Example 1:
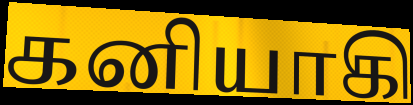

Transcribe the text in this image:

கனியாகி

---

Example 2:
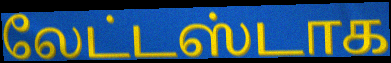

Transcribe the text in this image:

லேட்டஸ்டாக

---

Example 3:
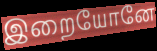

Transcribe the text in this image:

இறையோனே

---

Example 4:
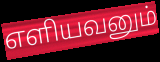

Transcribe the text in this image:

எளியவனும்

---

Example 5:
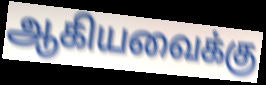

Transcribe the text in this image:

ஆகியவைக்கு